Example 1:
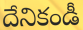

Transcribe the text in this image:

దేనికండీ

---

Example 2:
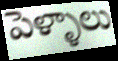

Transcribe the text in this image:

పెళ్ళాలు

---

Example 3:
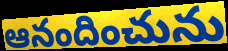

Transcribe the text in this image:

ఆనందించును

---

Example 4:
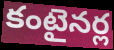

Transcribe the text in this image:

కంటైనర్ల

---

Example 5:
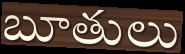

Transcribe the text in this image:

బూతులు